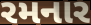
રમનાર